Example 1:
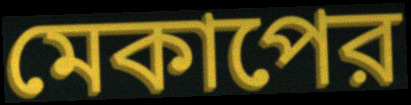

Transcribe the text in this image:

মেকাপের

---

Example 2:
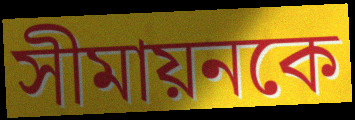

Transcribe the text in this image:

সীমায়নকে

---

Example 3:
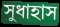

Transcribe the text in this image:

সুধাহাস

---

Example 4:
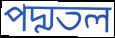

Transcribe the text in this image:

পদ্মতল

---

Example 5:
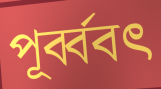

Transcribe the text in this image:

পূর্ব্ববৎ